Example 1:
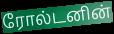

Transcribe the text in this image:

ரோல்டனின்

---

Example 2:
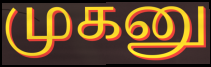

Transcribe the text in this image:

முகனு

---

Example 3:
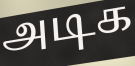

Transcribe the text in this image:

அடிக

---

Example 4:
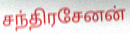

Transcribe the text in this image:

சந்திரசேனன்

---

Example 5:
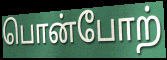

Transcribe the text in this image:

பொன்போற்